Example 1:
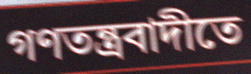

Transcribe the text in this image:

গণতন্ত্রবাদীতে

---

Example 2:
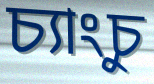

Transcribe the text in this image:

চ্যাংচু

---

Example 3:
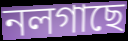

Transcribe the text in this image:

নলগাছে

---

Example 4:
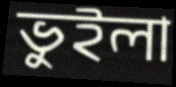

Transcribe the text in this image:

ভুইলা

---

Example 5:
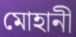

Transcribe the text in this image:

মোহানী